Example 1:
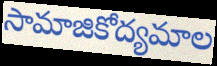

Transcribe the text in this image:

సామాజికోద్యమాల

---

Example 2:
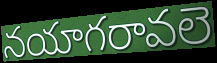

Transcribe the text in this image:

నయాగరావలె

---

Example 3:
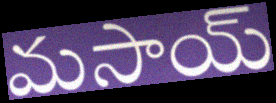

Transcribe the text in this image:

మసాయ్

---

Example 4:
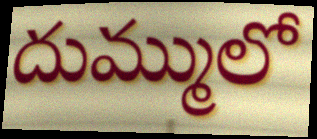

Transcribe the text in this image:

దుమ్ములో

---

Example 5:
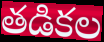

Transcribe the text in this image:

తడికల